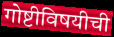
गोष्टीविषयीची